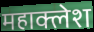
महाक्लेश